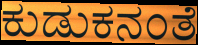
ಕುಡುಕನಂತೆ